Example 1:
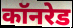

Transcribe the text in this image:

कॉनरेड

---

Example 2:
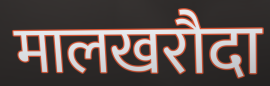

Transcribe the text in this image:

मालखरौदा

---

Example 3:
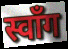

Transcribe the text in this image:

स्वाँग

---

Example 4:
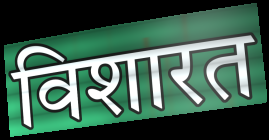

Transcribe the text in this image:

विशारत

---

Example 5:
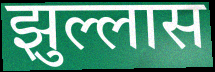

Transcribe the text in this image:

झुल्लास